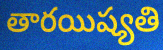
తారయిష్యతి